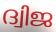
ദ്വിജ